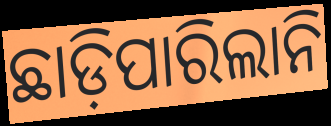
ଛାଡ଼ିପାରିଲାନି